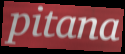
pitana